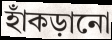
হাঁকড়ানো